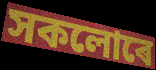
সকলোৰে